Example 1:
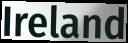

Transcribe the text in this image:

Ireland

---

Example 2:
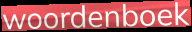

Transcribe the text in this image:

woordenboek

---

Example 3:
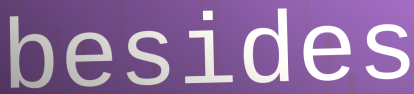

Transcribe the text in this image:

besides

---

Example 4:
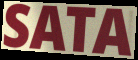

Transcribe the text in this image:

SATA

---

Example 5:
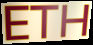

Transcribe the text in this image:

ETH